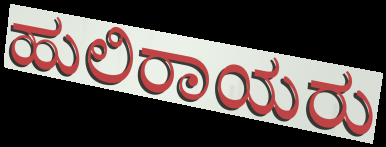
ಹುಲಿರಾಯರು